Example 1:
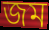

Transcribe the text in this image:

জম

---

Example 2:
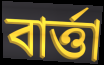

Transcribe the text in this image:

বার্ত্তা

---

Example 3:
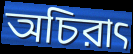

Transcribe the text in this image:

অচিরাৎ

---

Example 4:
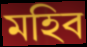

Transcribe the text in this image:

মহিব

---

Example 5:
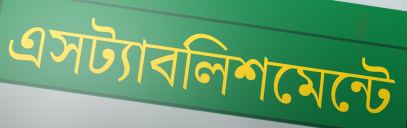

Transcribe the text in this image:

এসট্যাবলিশমেন্টে